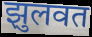
झुलवत